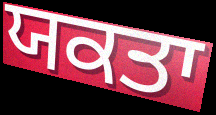
ਯਕਤਾ